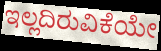
ಇಲ್ಲದಿರುವಿಕೆಯೇ